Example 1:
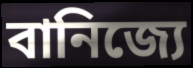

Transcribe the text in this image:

বানিজ্যে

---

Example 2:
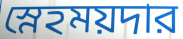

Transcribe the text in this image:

স্নেহময়দার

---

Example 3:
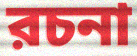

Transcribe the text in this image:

রচনা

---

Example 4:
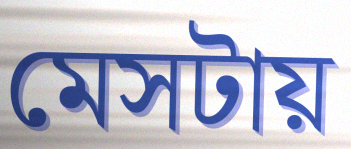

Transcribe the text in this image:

মেসটায়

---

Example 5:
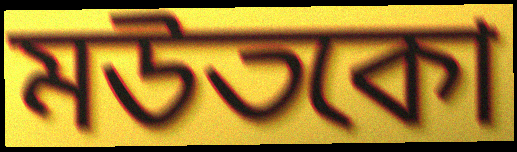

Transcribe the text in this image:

মউতকো